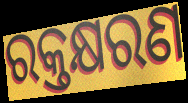
ରକ୍ତକ୍ଷରଣ